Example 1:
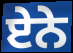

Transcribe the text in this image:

ਏੇਨੇ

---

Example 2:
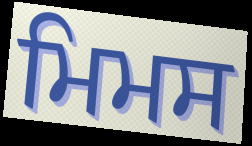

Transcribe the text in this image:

ਮਿਮਸ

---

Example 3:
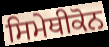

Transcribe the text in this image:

ਸਿਮੇਥੀਕੋਨ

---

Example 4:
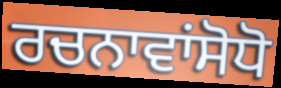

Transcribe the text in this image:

ਰਚਨਾਵਾਂਸੋਧੋ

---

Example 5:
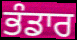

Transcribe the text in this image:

ਭੰਡਾਰ